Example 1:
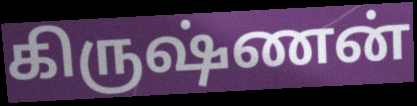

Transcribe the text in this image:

கிருஷ்ணன்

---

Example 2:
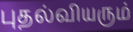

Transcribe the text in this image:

புதல்வியரும்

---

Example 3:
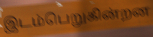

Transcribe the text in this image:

இடம்பெறுகின்றன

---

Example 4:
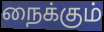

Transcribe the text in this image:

நைக்கும்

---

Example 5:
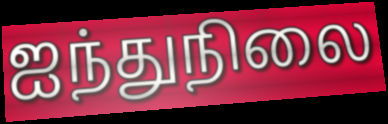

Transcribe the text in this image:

ஐந்துநிலை